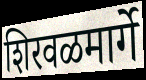
शिरवळमार्गे